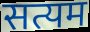
सत्यम